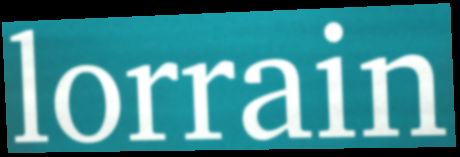
lorrain